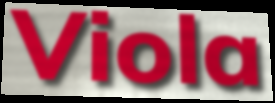
Viola